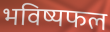
भविष्‍यफल